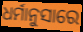
ଧର୍ମାନୁସାରେ